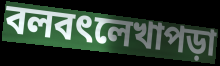
বলবৎলেখাপড়া